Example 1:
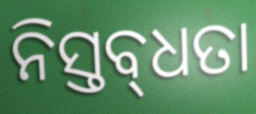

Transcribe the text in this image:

ନିସ୍ତବ୍‌ଧତା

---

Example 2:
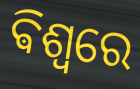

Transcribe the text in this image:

ଵିଶ୍ଵରେ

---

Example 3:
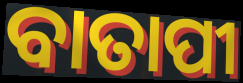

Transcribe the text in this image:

ବାତାପୀ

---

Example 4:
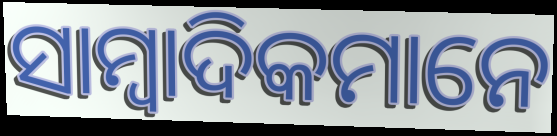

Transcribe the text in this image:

ସାମ୍ବାଦିକମାନେ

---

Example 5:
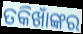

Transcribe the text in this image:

ତକିଖାଁଙ୍କର